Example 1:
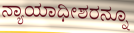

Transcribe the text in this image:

ನ್ಯಾಯಾಧೀಶರನ್ನೂ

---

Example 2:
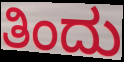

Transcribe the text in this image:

ತಿಂದು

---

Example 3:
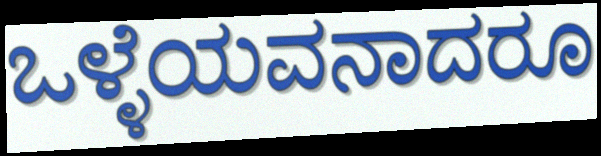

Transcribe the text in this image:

ಒಳ್ಳೆಯವನಾದರೂ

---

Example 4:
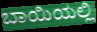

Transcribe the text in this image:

ಬಾಯಿಯಲ್ಲಿ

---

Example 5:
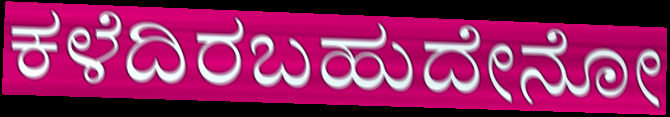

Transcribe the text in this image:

ಕಳೆದಿರಬಹುದೇನೋ